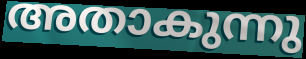
അതാകുന്നു